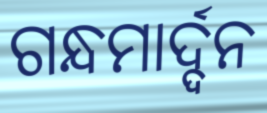
ଗନ୍ଧମାର୍ଦ୍ଦନ